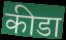
कीडा